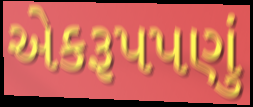
એકરૂપપણું